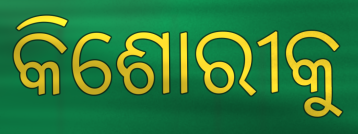
କିଶୋରୀକୁ